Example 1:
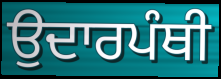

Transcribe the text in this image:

ਉਦਾਰਪੰਥੀ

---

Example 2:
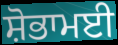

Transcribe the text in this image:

ਸ਼ੋਭਾਮਈ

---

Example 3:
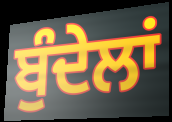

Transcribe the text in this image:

ਬੁੰਦੇਲਾਂ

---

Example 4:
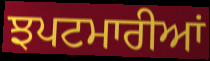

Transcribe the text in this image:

ਝਪਟਮਾਰੀਆਂ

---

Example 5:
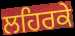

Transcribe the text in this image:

ਲਹਿਰਕੇ